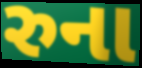
રુના